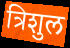
त्रिशुल